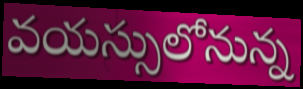
వయస్సులోనున్న